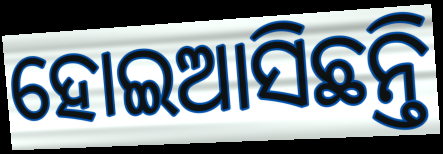
ହୋଇଆସିଛନ୍ତି